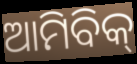
ଆମିବିକ୍